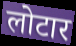
लोटार